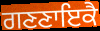
ਗਣਣਾਇਕੈ